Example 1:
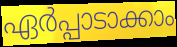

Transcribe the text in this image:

ഏർപ്പാടാക്കാം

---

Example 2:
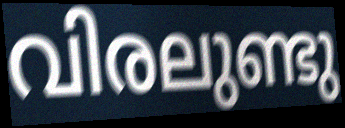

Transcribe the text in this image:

വിരലുണ്ടു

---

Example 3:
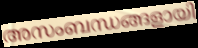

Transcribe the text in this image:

അസംബന്ധങ്ങളായി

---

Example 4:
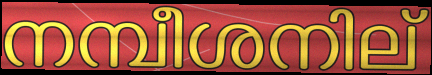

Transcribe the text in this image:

നമ്പീശനില്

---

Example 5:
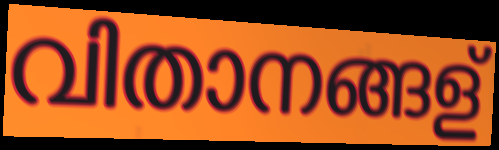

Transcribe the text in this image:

വിതാനങ്ങള്